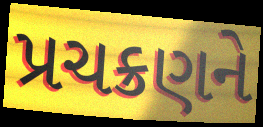
પ્રચક્રણને